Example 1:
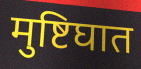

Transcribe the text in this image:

मुष्टिघात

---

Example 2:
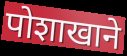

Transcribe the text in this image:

पोशाखाने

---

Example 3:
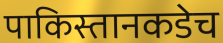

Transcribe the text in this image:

पाकिस्तानकडेच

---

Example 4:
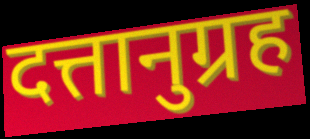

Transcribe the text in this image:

दत्तानुग्रह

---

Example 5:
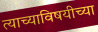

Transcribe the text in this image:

त्याच्याविषयीच्या